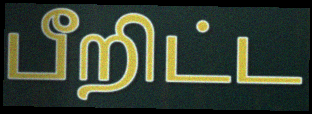
பீறிட்ட